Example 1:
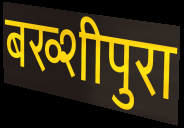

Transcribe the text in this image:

बख्शीपुरा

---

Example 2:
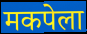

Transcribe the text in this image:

मकपेला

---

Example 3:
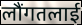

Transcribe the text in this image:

लौंगतलाई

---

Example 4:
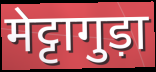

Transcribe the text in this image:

मेट्टागुड़ा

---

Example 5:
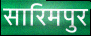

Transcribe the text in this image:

सारिमपुर